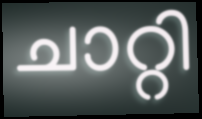
ചാറ്റി